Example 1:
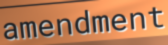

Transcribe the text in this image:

amendment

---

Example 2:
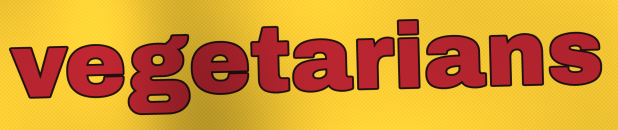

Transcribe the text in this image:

vegetarians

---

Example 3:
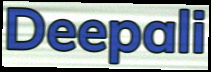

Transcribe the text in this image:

Deepali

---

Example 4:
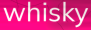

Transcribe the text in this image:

whisky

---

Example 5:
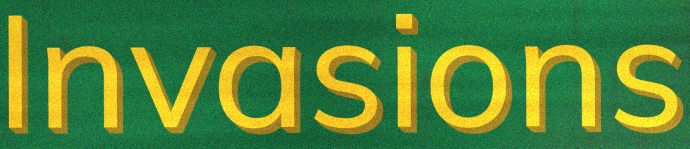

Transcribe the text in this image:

Invasions